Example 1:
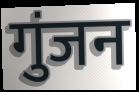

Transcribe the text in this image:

गुंजन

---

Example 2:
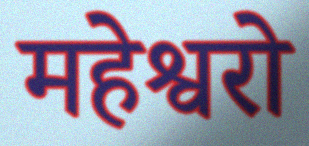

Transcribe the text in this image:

महेश्वरो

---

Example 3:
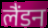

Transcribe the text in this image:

लैंडन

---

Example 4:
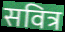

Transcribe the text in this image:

सवित्र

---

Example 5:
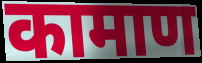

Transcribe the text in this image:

कामाण